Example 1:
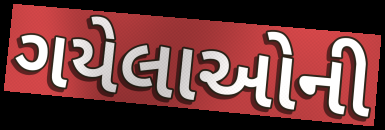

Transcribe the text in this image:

ગયેલાઓની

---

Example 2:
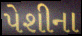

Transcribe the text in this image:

પેશીના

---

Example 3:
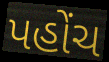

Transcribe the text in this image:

પહોંચ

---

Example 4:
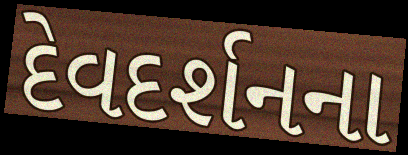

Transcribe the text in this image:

દેવદર્શનના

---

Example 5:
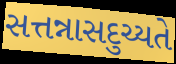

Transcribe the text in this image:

સત્તન્નાસદુચ્યતે